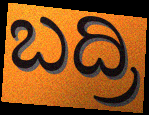
ಬದ್ರಿ